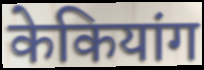
केकियांग